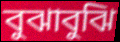
বুঝাবুঝি